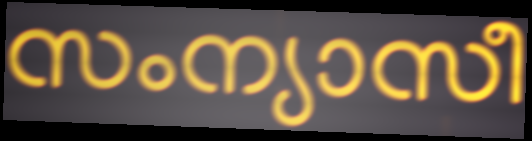
സംന്യാസീ